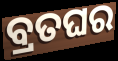
ବ୍ରତଘର